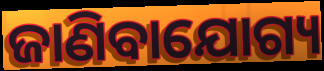
ଜାଣିବାଯୋଗ୍ୟ